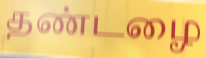
தண்டழை